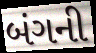
બંગની